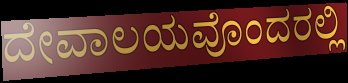
ದೇವಾಲಯವೊಂದರಲ್ಲಿ